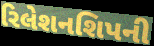
રિલેશનશિપની